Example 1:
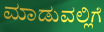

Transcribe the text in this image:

ಮಾಡುವಲ್ಲಿಗೆ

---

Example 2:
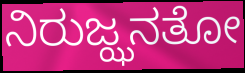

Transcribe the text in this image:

ನಿರುಜ್ಝನತೋ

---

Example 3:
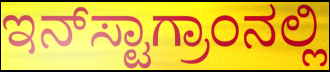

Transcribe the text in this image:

ಇನ್‌ಸ್ಟಾಗ್ರಾಂನಲ್ಲಿ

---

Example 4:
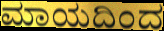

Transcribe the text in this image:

ಮಾಯದಿಂದ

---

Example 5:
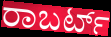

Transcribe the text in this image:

ರಾಬರ್ಟ್